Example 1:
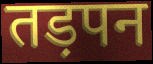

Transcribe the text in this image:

तड़पन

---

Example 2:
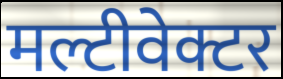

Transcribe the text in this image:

मल्टीवेक्टर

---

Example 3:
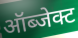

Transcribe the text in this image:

ऑब्जेक्ट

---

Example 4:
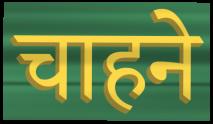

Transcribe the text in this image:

चाहने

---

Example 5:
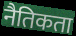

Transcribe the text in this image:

नैतिकता